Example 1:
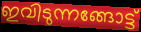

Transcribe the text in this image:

ഇവിടുന്നങ്ങോട്ട്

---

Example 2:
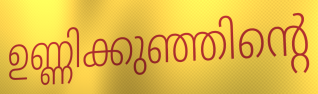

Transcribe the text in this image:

ഉണ്ണിക്കുഞ്ഞിന്റെ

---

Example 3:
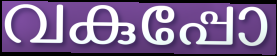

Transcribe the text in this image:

വകുപ്പോ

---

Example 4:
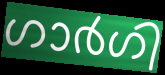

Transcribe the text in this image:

ഗാർഗി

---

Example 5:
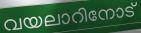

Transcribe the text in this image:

വയലാറിനോട്